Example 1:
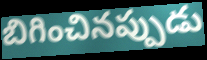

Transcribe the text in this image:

బిగించినప్పుడు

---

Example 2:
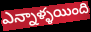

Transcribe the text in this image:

ఎన్నాళ్ళయింది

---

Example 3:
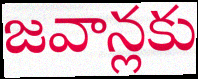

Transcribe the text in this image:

జవాన్లకు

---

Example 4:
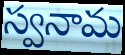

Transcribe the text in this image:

స్వనామ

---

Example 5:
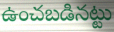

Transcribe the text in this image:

ఉంచబడినట్టు